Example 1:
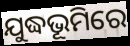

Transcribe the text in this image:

ଯୁଦ୍ଧଭୂମିରେ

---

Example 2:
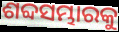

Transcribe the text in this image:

ଶବ୍ଦସମ୍ଭାରକୁ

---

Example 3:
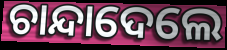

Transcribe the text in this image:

ଚାନ୍ଦାଦେଲେ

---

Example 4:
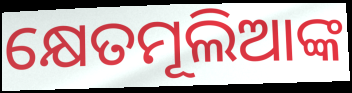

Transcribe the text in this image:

କ୍ଷେତମୂଲିଆଙ୍କ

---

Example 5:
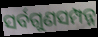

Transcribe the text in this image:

ସର୍ବଗୁଣସମ୍ପନ୍ନ